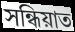
সন্ধিয়াত